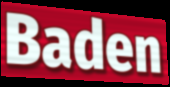
Baden